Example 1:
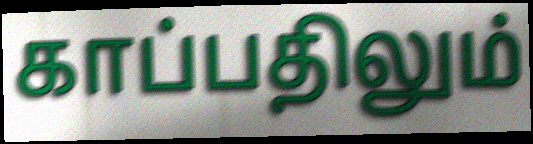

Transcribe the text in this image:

காப்பதிலும்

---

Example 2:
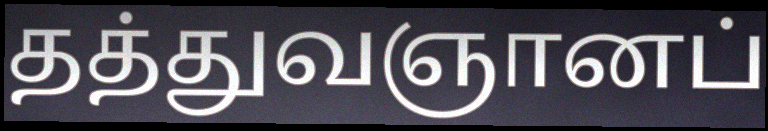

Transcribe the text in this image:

தத்துவஞானப்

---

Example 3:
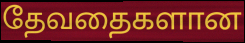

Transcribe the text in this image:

தேவதைகளான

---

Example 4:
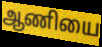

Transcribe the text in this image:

ஆணியை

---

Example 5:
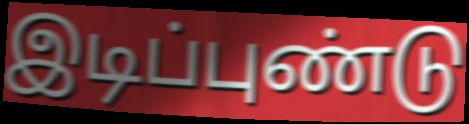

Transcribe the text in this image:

இடிப்புண்டு